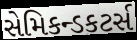
સેમિકન્ડકટર્સ